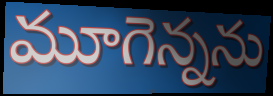
మూగెన్నను